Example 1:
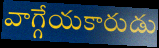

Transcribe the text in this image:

వాగ్గేయకారుడు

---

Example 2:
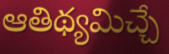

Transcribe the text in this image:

ఆతిథ్యమిచ్చే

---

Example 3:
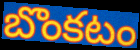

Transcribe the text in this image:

బొంకటం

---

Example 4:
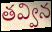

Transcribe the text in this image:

తవ్విన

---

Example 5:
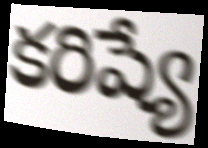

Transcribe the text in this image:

కరిష్యే